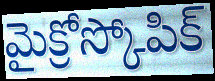
మైక్రోస్కోపిక్